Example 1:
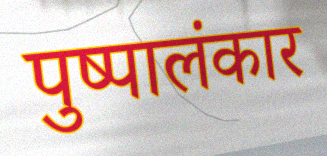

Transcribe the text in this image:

पुष्पालंकार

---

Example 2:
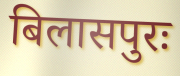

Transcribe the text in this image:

बिलासपुरः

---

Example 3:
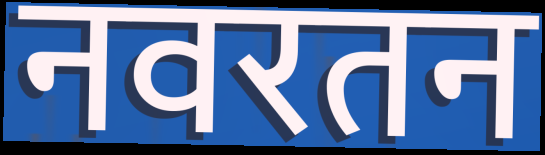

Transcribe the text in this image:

नवरतन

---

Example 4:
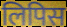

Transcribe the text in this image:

लिपिस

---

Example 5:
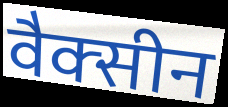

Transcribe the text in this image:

वैक्‍सीन